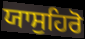
ਯਾਸੁਹਿਰੋ